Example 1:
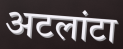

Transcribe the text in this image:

अटलांटा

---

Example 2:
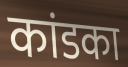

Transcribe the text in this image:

कांडका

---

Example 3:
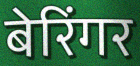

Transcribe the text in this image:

बेरिंगर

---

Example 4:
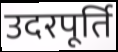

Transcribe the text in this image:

उदरपूर्ति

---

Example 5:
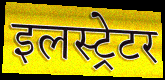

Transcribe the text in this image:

इलस्ट्रेटर